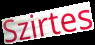
Szirtes